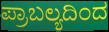
ಪ್ರಾಬಲ್ಯದಿಂದ